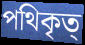
পথিকৃত্